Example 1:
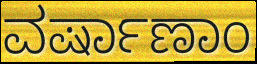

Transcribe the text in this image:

ವರ್ಷಾಣಾಂ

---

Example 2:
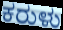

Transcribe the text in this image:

ಕರುಳು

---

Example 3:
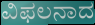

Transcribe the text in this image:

ವಿಫಲನಾದ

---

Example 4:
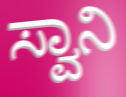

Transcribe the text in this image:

ಸ್ವಾನಿ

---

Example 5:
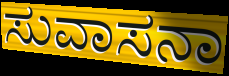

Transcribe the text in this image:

ಸುವಾಸನಾ